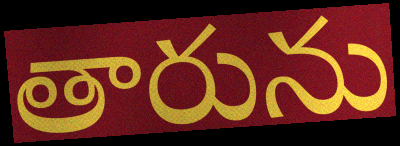
తారును